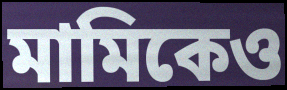
মামিকেও